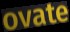
ovate